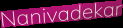
Nanivadekar